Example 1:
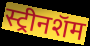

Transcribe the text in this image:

स्ट्रीनशॅम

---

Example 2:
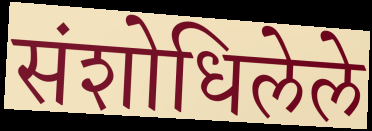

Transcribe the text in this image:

संशोधिलेले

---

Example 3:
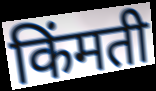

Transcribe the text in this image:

किंमती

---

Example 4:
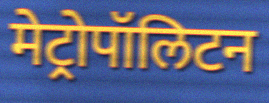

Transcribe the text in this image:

मेट्रोपॉलिटन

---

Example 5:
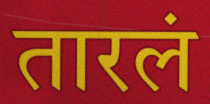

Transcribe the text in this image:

तारलं